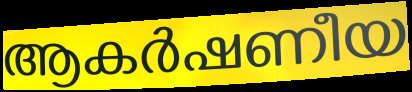
ആകർഷണീയ